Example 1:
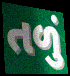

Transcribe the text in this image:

તળું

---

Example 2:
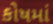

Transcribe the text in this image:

કોષમાં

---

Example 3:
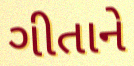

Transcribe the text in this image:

ગીતાને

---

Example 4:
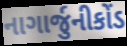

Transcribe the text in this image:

નાગાર્જુનીકોંડ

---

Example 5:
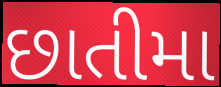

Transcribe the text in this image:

છાતીમા